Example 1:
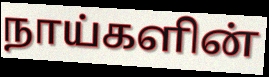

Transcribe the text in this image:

நாய்களின்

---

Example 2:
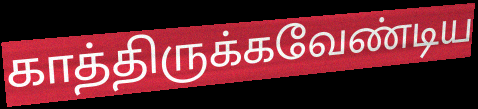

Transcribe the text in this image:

காத்திருக்கவேண்டிய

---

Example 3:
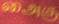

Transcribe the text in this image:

அைகு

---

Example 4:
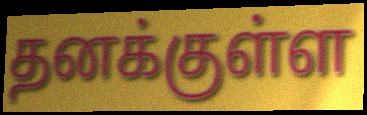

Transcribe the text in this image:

தனக்குள்ள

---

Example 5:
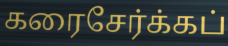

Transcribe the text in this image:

கரைசேர்க்கப்